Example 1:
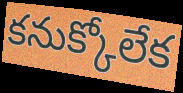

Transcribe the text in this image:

కనుక్కోలేక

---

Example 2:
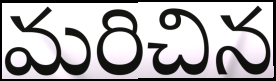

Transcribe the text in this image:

మరిచిన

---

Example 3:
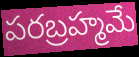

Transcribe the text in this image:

పరబ్రహ్మమే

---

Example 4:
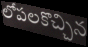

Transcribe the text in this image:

లోపలకొచ్చిన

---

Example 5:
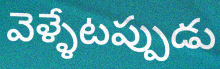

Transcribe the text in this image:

వెళ్ళేటప్పుడు